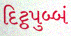
દિટ્ઠપુબ્બં